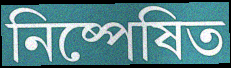
নিষ্পেষিত